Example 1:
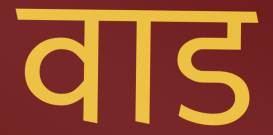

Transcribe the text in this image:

वाड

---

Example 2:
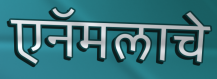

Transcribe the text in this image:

एनॅमलाचे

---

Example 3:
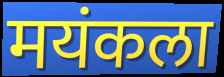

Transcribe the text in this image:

मयंकला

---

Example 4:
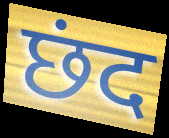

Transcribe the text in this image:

छंद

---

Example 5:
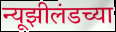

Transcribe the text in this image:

न्यूझीलंडच्या